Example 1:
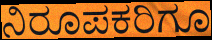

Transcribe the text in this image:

ನಿರೂಪಕರಿಗೂ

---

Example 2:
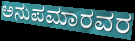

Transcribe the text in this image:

ಅನುಪಮಾರವರ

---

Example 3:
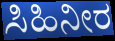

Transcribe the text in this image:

ಸಿಹಿನೀರ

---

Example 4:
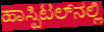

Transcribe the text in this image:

ಹಾಸ್ಪಿಟಲ್‌ನಲ್ಲಿ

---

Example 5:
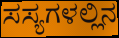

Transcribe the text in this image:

ಸಸ್ಯಗಳಲ್ಲಿನ